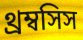
থ্রম্বসিস